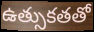
ఉత్సుకతతో